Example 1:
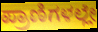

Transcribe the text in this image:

ಪ್ರಾಣಿಗಳಲ್ಲೇ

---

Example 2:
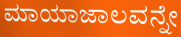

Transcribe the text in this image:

ಮಾಯಾಜಾಲವನ್ನೇ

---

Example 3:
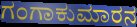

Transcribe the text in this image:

ಗಂಗಾಕುಮಾರನ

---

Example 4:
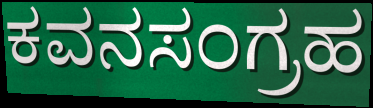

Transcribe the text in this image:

ಕವನಸಂಗ್ರಹ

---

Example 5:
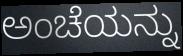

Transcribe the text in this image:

ಅಂಚೆಯನ್ನು